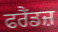
ਫਰੈਂਡਜ਼